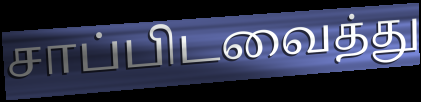
சாப்பிடவைத்து